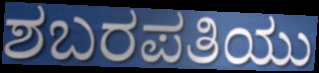
ಶಬರಪತಿಯು